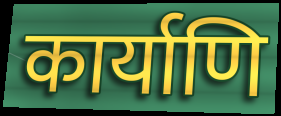
कार्याणि